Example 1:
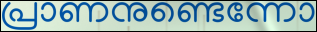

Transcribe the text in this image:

പ്രാണനുണ്ടെന്നോ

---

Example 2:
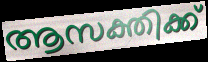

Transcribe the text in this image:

ആസക്തിക്ക്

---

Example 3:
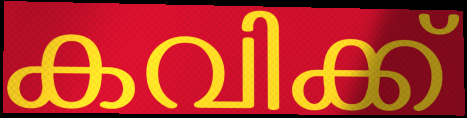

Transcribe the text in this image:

കവിക്ക്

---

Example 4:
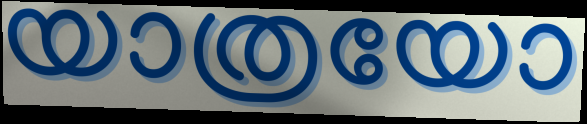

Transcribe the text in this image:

യാത്രയോ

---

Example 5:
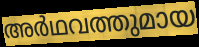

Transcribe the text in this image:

അർഥവത്തുമായ